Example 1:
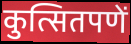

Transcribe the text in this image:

कुत्सितपणें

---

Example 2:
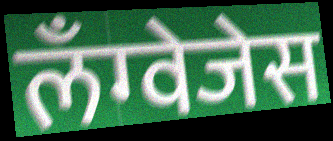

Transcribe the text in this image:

लँग्वेजेस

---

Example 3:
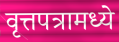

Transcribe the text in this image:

वृत्तपत्रामध्ये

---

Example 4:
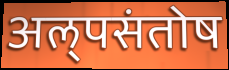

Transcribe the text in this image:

अल्पसंतोष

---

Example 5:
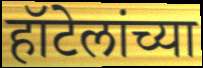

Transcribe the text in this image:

हॉटेलांच्या